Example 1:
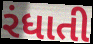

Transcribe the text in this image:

રંધાતી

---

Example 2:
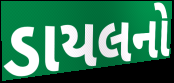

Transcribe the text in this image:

ડાયલનો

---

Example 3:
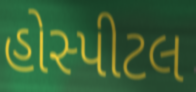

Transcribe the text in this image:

હોસ્પીટલ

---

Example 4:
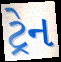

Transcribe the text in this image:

ટ્રેન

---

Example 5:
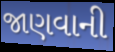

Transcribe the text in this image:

જાણવાની